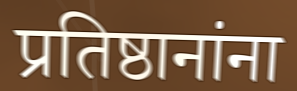
प्रतिष्ठानांना